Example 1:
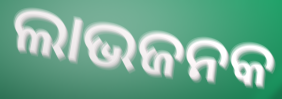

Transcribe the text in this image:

ଲାଭଜନକ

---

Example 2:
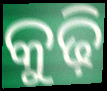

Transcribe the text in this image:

କୁଢ଼ି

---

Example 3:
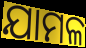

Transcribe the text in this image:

ଯାମଳ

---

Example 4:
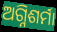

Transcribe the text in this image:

ଅଗ୍ନିଶର୍ମା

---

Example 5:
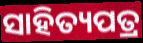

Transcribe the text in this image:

ସାହିତ୍ୟପତ୍ର